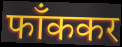
फाँककर